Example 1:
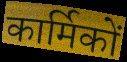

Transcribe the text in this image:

कार्मिकों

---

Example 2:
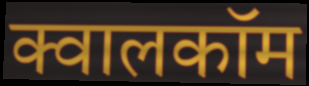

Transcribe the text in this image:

क्वालकॉम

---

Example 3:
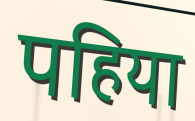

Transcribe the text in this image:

पहिया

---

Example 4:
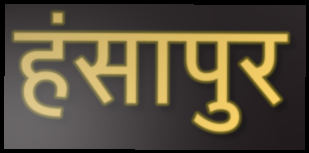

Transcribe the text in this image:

हंसापुर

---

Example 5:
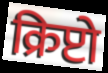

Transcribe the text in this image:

क्रिप्टो